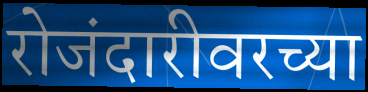
रोजंदारीवरच्या